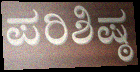
ಪರಿಶಿಷ್ಠ